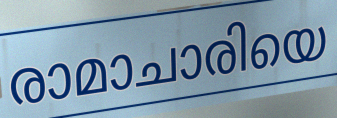
രാമാചാരിയെ